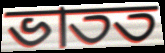
ভাতত